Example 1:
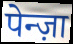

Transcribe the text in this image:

पेन्ज़ा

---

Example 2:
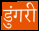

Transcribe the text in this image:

डुंगरी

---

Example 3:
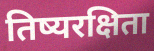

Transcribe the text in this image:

तिष्यरक्षिता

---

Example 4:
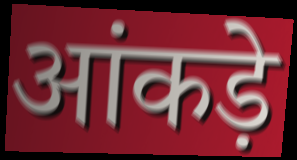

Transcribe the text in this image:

आंकड़े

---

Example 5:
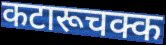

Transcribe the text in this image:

कटारूचक्क